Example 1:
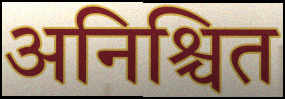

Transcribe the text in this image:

अनिश्चित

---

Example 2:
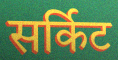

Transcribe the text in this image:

सर्किट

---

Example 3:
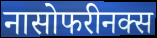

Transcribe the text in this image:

नासोफरीनक्स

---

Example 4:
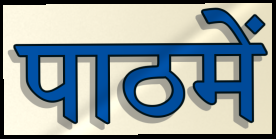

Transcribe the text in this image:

पाठमें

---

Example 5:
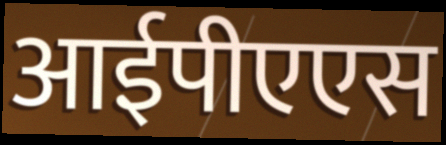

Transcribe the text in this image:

आईपीएएस